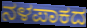
ನಳಪಾಕದ